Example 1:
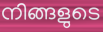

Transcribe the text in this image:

നിങ്ങളുടെ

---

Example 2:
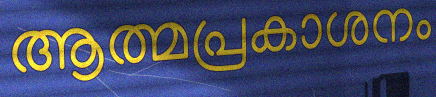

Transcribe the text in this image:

ആത്മപ്രകാശനം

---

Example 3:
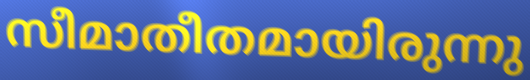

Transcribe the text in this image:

സീമാതീതമായിരുന്നു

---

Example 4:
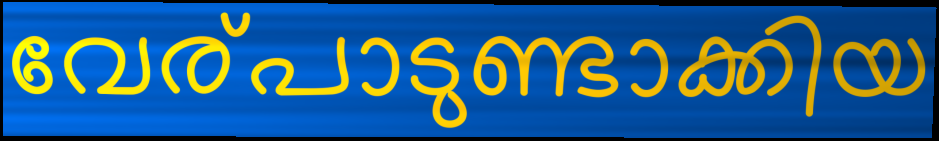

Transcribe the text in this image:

വേര്പാടുണ്ടാക്കിയ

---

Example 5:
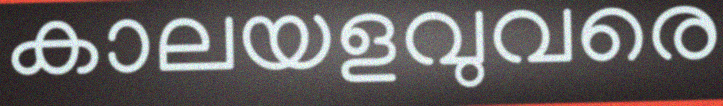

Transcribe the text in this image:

കാലയളവുവരെ